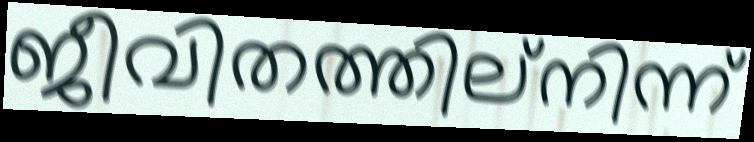
ജീവിതത്തില്നിന്ന്